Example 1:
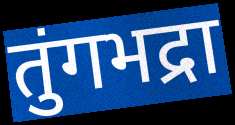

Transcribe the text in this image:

तुंगभद्रा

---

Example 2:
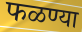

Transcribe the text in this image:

फळण्या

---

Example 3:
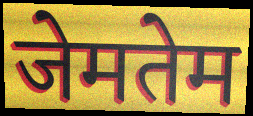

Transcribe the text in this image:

जेमतेम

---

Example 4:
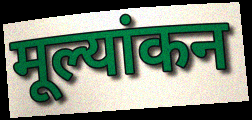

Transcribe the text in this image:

मूल्यांकन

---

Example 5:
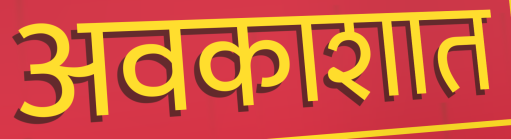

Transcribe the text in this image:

अवकाशात